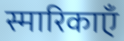
स्मारिकाएँ